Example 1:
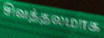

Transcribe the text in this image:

சிவத்தலமாக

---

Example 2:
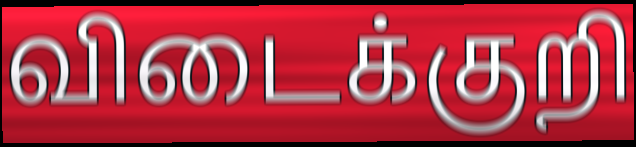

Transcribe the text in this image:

விடைக்குறி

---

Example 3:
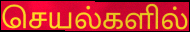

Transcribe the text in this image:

செயல்களில்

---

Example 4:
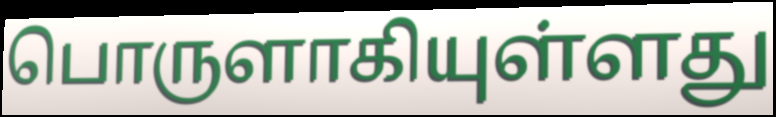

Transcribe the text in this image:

பொருளாகியுள்ளது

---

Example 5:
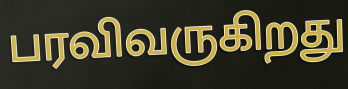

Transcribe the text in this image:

பரவிவருகிறது